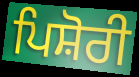
ਪਿਸ਼ੋਰੀ